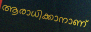
ആരാധിക്കാനാണ്